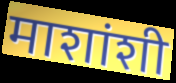
माशांशी